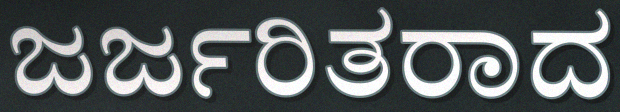
ಜರ್ಜರಿತರಾದ